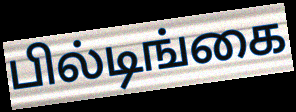
பில்டிங்கை